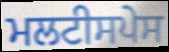
ਮਲਟੀਸਪੇਸ